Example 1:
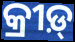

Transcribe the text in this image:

କ୍ରୀଡ଼୍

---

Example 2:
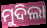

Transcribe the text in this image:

ମୁଦିଲା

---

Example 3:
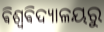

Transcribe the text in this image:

ଵିଶ୍ୱଵିଦ୍ୟାଳୟରୁ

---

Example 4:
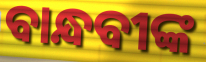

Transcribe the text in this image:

ବାନ୍ଧବୀଙ୍କ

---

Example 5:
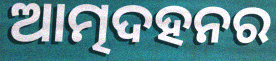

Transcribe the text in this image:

ଆତ୍ମଦହନର